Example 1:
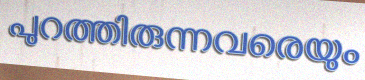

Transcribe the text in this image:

പുറത്തിരുന്നവരെയും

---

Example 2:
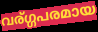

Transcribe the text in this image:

വര്ഗ്ഗപരമായ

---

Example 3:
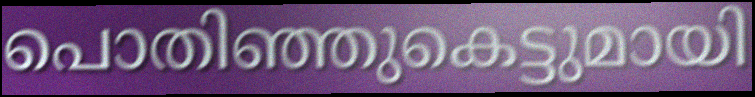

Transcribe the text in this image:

പൊതിഞ്ഞുകെട്ടുമായി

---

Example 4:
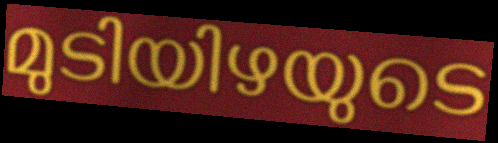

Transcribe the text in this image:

മുടിയിഴയുടെ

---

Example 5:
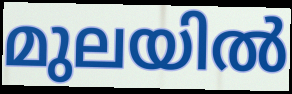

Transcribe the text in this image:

മുലയിൽ